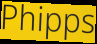
Phipps